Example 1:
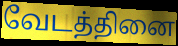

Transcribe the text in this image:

வேடத்தினை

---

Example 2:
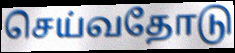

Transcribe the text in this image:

செய்வதோடு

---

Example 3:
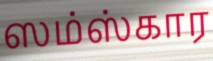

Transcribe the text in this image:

ஸம்ஸ்கார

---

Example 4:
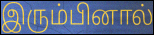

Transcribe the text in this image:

இரும்பினால்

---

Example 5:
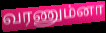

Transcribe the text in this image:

வரணும்னா